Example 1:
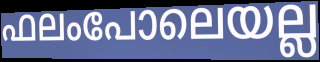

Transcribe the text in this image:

ഫലംപോലെയല്ല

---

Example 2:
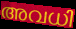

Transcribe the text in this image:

അവധി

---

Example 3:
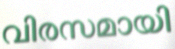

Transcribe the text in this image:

വിരസമായി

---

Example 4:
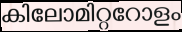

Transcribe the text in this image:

കിലോമിറ്ററോളം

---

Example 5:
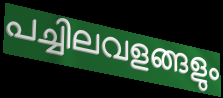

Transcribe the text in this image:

പച്ചിലവളങ്ങളും